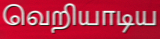
வெறியாடிய